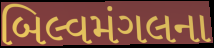
બિલ્વમંગલના